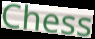
Chess